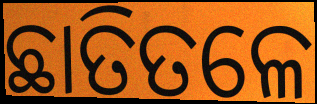
ଛାତିତଳେ